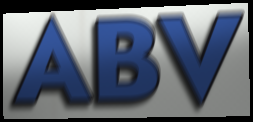
ABV